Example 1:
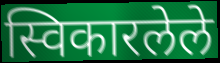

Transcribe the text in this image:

स्विकारलेले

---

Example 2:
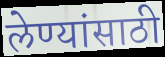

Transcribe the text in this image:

लेण्यांसाठी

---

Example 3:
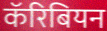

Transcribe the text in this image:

कॅरिबियन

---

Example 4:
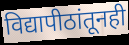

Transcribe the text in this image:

विद्यापीठांतूनही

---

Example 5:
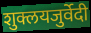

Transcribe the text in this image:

शुक्लयजुर्वेदी